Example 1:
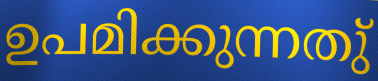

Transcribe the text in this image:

ഉപമിക്കുന്നതു്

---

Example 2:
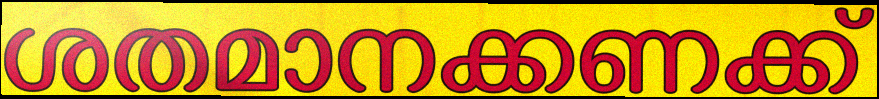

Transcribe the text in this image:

ശതമാനക്കണക്ക്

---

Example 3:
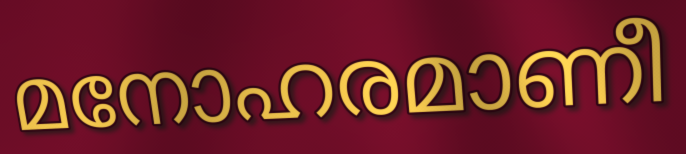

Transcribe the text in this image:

മനോഹരമാണീ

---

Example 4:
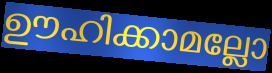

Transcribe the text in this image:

ഊഹിക്കാമല്ലോ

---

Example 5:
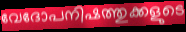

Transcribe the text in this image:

വേദോപനിഷത്തുക്കളുടെ